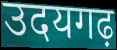
उदयगढ़